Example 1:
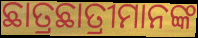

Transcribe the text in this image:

ଛାତ୍ରଛାତ୍ରୀମାନଙ୍କ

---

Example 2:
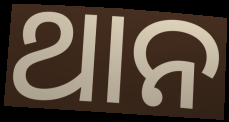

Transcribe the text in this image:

ଥାନ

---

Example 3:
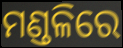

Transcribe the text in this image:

ମଣ୍ଡଳିରେ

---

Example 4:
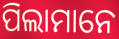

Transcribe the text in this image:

ପିଲାମାନେ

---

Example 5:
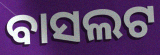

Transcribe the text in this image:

ବାସଲଟ